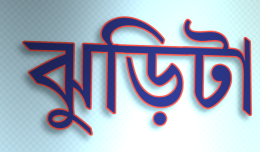
ঝুড়িটা